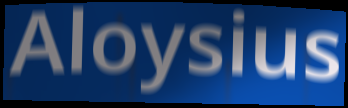
Aloysius